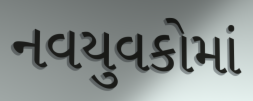
નવયુવકોમાં